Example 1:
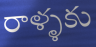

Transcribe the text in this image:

రాళ్ళకు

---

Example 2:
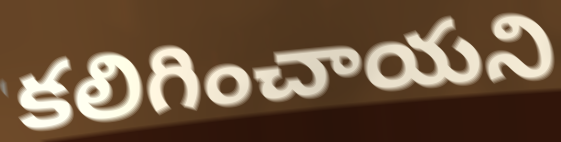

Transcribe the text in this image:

కలిగించాయని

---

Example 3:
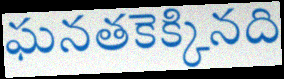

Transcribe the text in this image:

ఘనతకెక్కినది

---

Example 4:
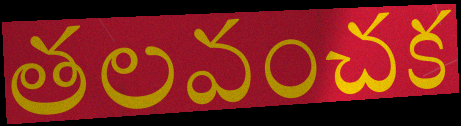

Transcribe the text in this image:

తలవంచక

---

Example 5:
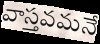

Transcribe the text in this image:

వాస్తవమనే